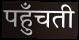
पहुँचती